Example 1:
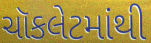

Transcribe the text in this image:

ચૉકલેટમાંથી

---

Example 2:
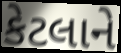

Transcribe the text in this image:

કેટલાને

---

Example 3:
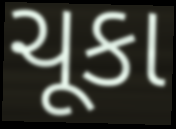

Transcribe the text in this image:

ચૂકા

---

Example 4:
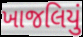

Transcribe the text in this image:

ખાજલિયું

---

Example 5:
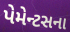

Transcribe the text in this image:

પેમેન્ટસના